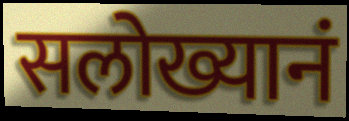
सलोख्यानं